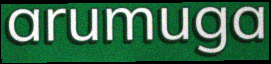
arumuga